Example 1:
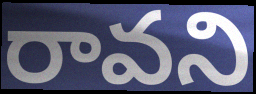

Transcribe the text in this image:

రావని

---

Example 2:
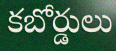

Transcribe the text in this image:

కబోర్డులు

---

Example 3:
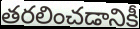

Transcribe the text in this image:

తరలించడానికీ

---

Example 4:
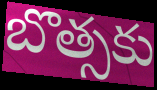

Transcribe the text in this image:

బొత్సకు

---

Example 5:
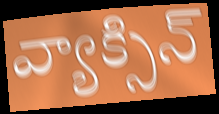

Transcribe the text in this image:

వ్యాక్సిన్